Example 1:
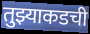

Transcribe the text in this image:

तुझ्याकडची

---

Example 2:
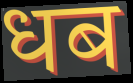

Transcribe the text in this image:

धब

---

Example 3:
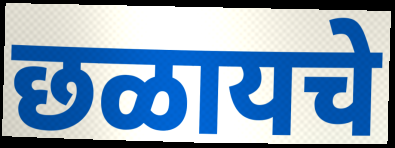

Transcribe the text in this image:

छळायचे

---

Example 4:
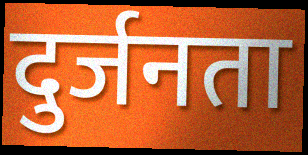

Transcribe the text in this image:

दुर्जनता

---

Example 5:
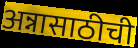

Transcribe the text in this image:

अन्नासाठीची